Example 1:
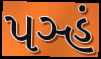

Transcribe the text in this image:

પઞ્હં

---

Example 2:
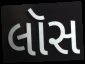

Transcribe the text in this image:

લૉસ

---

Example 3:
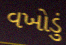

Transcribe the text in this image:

વખોડું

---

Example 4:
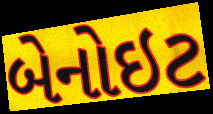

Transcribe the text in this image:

બેનોઇટ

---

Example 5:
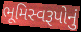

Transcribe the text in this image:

ભૂમિસ્વરૂપોનું